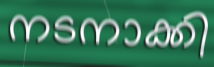
നടനാക്കി